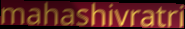
mahashivratri